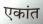
एकांत